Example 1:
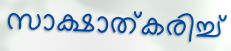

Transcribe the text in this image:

സാക്ഷാത്കരിച്ച്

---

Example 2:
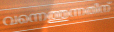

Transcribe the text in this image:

വന്നെത്തുന്നതിന്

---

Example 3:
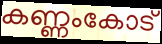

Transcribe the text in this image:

കണ്ണംകോട്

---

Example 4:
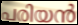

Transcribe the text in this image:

പരിയൻ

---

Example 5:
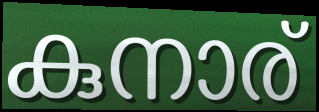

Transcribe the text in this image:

കുനാര്